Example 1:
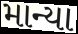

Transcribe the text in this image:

માન્યા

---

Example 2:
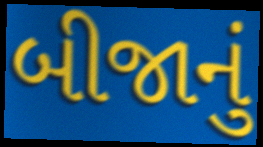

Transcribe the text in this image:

બીજાનું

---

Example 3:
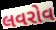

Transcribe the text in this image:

લવરોવ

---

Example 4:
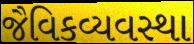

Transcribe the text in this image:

જૈવિકવ્યવસ્થા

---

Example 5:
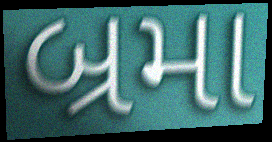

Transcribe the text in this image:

બ્રમા